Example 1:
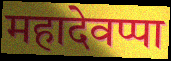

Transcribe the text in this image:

महादेवप्पा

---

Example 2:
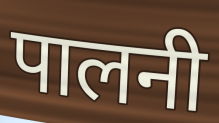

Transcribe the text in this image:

पालनी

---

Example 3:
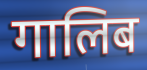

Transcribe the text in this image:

गालिब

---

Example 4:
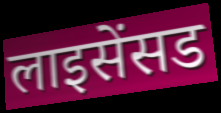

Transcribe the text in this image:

लाइसेंसड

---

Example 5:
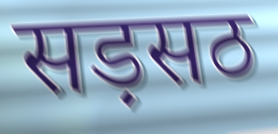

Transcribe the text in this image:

सड़सठ